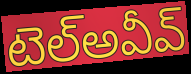
టెల్అవీవ్